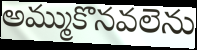
అమ్ముకొనవలెను